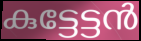
കുട്ടേട്ടൻ